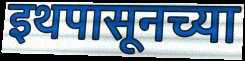
इथपासूनच्या